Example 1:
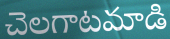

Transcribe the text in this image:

చెలగాటమాడి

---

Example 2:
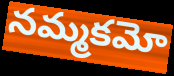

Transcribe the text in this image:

నమ్మకమో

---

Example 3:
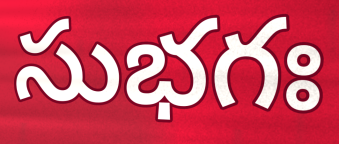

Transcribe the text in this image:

సుభగః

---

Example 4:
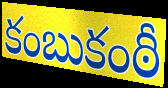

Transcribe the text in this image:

కంబుకంఠీ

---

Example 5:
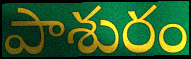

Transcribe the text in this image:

పాశురం